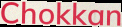
Chokkan